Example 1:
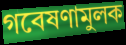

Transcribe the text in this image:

গবেষণামুলক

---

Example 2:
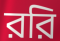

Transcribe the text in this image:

ররি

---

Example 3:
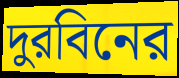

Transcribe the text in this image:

দুরবিনের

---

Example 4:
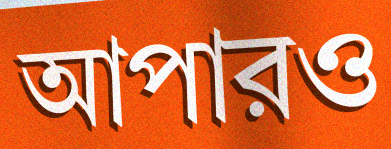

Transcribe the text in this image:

আপারও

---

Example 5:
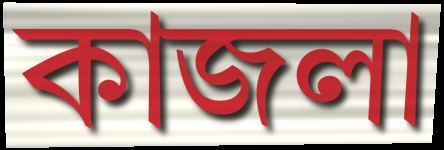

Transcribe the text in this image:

কাজলা